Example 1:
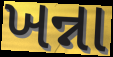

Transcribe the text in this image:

ખન્ના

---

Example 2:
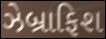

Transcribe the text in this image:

ઝેબ્રાફિશ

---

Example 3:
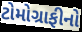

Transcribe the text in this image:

ટોમોગ્રાફીનો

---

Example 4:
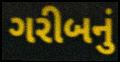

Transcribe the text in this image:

ગરીબનું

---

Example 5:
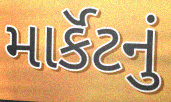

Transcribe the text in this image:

માર્કૅટનું